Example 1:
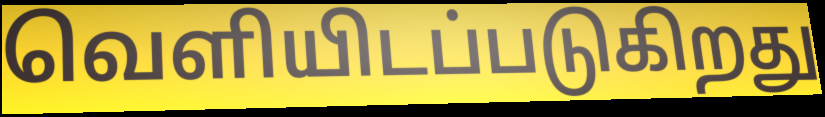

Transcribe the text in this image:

வெளியிடப்படுகிறது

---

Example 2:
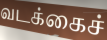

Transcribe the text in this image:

வடக்கைச்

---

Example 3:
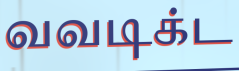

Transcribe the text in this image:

வவடிக்ட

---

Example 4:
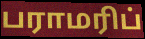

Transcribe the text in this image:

பராமரிப்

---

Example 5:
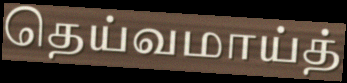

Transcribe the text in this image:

தெய்வமாய்த்